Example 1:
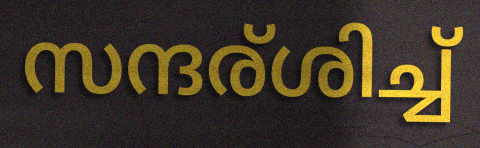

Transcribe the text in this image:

സന്ദര്ശിച്ച്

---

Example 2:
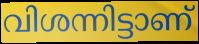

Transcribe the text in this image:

വിശന്നിട്ടാണ്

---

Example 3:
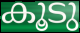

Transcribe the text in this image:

കൂടു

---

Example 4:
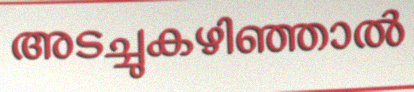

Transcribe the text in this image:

അടച്ചുകഴിഞ്ഞാൽ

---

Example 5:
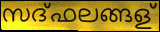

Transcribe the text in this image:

സദ്ഫലങ്ങള്